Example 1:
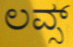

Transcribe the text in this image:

ಲವ್ಸ್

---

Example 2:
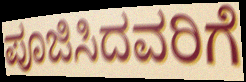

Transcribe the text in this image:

ಪೂಜಿಸಿದವರಿಗೆ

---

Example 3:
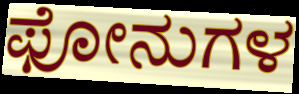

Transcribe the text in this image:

ಫೋನುಗಳ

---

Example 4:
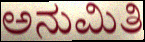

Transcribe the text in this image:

ಅನುಮಿತಿ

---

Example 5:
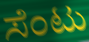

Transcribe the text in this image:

ಸೆಂಟು